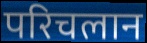
परिचलान